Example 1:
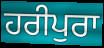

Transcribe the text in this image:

ਹਰੀਪੁਰਾ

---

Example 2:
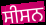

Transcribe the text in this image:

ਸੀਸਨ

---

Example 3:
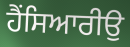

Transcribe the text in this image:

ਹੈਂਸਿਆਰੀਉ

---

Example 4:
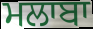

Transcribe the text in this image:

ਮਲਾਬਾ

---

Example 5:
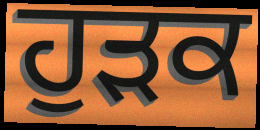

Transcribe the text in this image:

ਹੁੜਕ